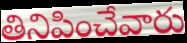
తినిపించేవారు